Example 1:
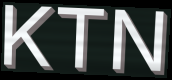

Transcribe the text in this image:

KTN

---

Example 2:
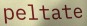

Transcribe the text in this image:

peltate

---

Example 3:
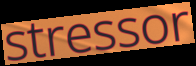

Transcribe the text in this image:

stressor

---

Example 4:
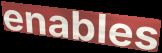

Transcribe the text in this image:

enables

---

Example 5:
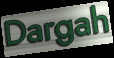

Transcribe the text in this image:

Dargah